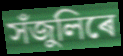
সঁজুলিৰে